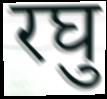
रघु